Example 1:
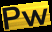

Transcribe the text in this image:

Pw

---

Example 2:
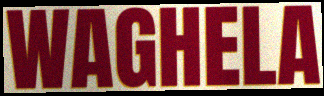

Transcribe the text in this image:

WAGHELA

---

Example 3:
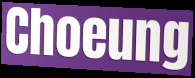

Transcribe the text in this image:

Choeung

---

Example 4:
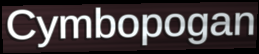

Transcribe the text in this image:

Cymbopogan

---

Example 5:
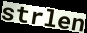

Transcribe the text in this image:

strlen